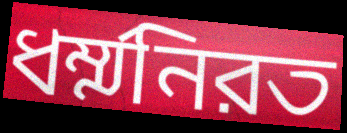
ধর্ম্মনিরত